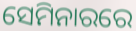
ସେମିନାରରେ